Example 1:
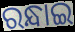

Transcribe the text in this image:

ରନ୍ଧାଇ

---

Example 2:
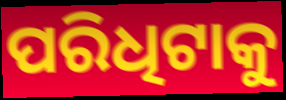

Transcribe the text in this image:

ପରିଧିଟାକୁ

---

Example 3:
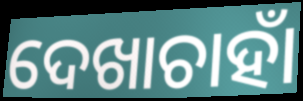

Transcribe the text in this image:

ଦେଖାଚାହାଁ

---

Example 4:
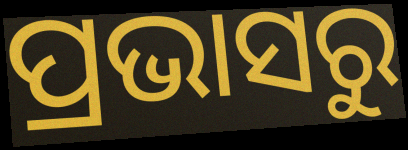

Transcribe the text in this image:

ପ୍ରଭାସରୁ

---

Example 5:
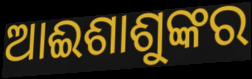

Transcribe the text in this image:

ଆଈଶାଶୁଙ୍କର